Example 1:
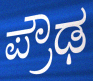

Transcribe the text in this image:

ಪ್ರೌಢ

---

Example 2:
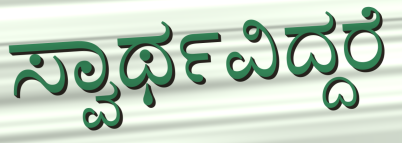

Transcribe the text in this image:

ಸ್ವಾರ್ಥವಿದ್ದರೆ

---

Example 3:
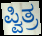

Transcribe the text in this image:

ಪ್ವಿತ್ರ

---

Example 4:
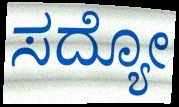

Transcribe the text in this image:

ಸದ್ಯೋ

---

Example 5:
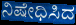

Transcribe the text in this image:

ನಿಷೇಧಿಸಿದ